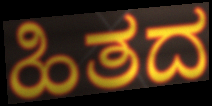
ಹಿತದ